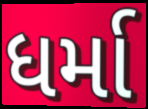
ધર્મા